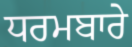
ਧਰਮਬਾਰੇ